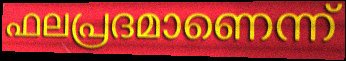
ഫലപ്രദമാണെന്ന്